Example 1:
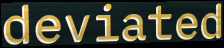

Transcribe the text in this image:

deviated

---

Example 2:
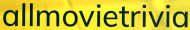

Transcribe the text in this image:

allmovietrivia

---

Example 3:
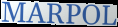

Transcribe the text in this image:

MARPOL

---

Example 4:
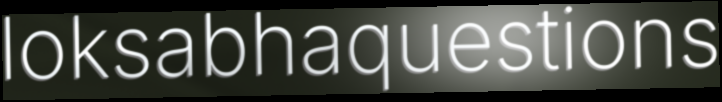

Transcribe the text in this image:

loksabhaquestions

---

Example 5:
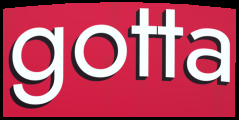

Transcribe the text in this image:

gotta